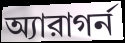
অ্যারাগর্ন